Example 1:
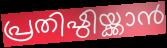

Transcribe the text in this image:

പ്രതിഷ്ഠിയ്ക്കാൻ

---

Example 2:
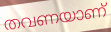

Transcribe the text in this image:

തവണയാണ്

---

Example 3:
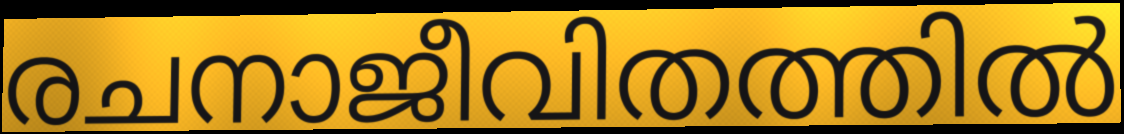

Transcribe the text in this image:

രചനാജീവിതത്തിൽ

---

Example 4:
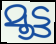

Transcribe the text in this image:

മൂട്ട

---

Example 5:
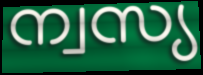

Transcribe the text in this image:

ന്വസ്യ